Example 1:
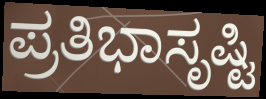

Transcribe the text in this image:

ಪ್ರತಿಭಾಸೃಷ್ಟಿ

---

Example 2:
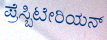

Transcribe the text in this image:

ಪ್ರೆಸ್ಬಿಟೇರಿಯನ್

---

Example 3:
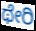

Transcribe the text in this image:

ಥೇರಿ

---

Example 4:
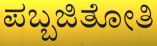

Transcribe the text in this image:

ಪಬ್ಬಜಿತೋತಿ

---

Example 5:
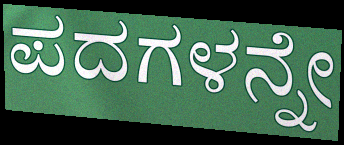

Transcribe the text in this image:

ಪದಗಳನ್ನೇ